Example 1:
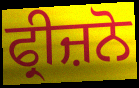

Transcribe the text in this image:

ਫ੍ਰੀਜ਼ਨੋ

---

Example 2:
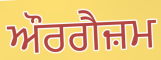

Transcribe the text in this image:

ਔਰਗੈਜ਼ਮ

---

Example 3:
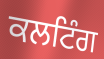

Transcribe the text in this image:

ਕਲਟਿੰਗ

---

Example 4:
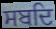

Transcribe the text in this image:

ਸਬਦਿ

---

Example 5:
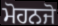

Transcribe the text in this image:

ਮੋਹਨਜੋ